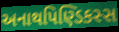
અનાથપિણ્ડિકસ્સ